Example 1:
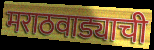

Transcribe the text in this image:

मराठवाड्याची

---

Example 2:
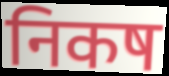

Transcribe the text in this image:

निकष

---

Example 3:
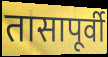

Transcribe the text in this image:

तासापूर्वी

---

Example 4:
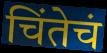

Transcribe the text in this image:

चिंतेचं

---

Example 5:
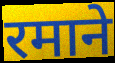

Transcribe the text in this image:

रमाने